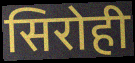
सिरोही